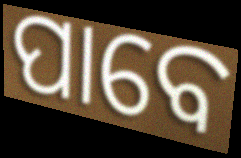
ପାବେ